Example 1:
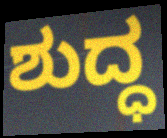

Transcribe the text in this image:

ಶುದ್ಧ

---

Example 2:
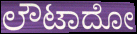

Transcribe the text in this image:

ಲೌಟಾದೋ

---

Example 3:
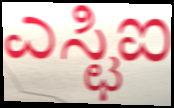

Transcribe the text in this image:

ಎಸ್ಟಿಐ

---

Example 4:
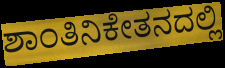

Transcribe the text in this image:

ಶಾಂತಿನಿಕೇತನದಲ್ಲಿ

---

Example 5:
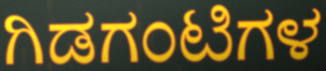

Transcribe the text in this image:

ಗಿಡಗಂಟಿಗಳ